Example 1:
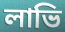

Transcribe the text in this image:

লাভি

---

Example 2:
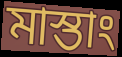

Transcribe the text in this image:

মাস্তাং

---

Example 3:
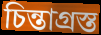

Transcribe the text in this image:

চিন্তাগ্রস্ত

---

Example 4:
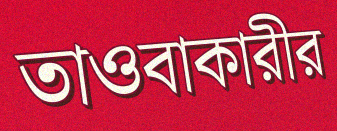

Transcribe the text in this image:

তাওবাকারীর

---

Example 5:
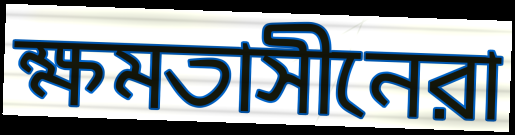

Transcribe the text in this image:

ক্ষমতাসীনেরা